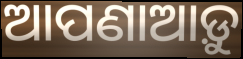
ଆପଣାଆଡ଼ୁ